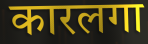
कारलगा